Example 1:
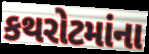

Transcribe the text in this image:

કથરોટમાંના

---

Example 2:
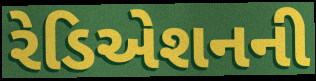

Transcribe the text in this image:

રેડિએશનની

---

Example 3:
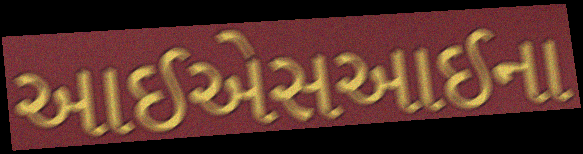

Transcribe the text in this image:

આઈએસઆઈના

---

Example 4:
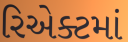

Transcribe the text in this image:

રિએક્ટમાં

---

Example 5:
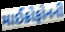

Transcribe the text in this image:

માઈક્રોફોનની